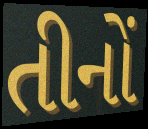
તીનોં